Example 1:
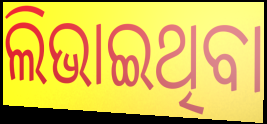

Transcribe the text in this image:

ଲିଭାଇଥିବା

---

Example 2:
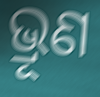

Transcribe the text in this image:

ଭ୍ରୂଣ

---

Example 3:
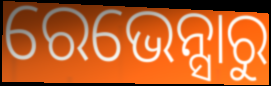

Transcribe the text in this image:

ରେଭେନ୍ସାରୁ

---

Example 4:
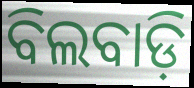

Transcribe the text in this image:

ବିଲବାଡ଼ି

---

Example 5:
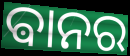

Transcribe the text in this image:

ଵାନର